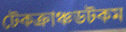
টেকক্রাঞ্চডটকম